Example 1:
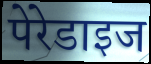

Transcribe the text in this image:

पेरेडाइज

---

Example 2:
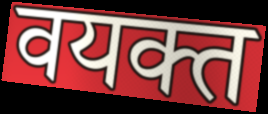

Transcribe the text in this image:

वयक्त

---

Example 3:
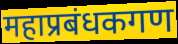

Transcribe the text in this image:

महाप्रबंधकगण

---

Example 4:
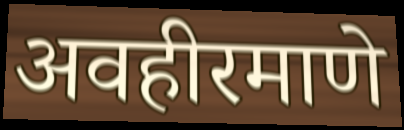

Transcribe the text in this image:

अवहीरमाणे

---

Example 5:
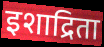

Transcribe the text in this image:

इशाद्रिता